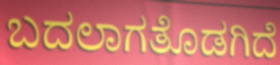
ಬದಲಾಗತೊಡಗಿದೆ